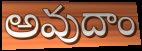
అవుదాం